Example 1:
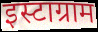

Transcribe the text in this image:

इस्टाग्राम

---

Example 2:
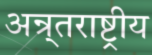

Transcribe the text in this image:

अन्र्तराष्ट्रीय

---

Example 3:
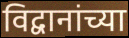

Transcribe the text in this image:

विद्वानांच्या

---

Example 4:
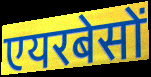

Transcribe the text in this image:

एयरबेसों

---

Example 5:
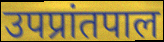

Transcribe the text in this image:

उपप्रांतपाल